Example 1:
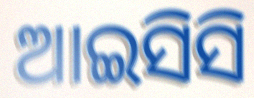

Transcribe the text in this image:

ଆଇସିସି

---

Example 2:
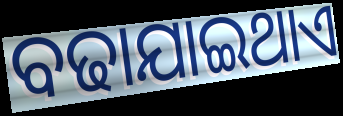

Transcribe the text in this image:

ବଢାଯାଇଥାଏ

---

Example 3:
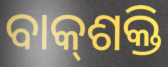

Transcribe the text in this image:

ବାକ୍‌ଶକ୍ତି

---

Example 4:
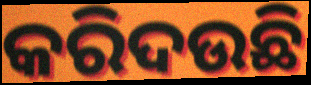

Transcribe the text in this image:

କରିଦଉଛି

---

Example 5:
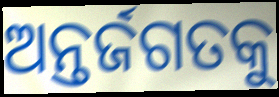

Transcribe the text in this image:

ଅନ୍ତର୍ଜଗତକୁ